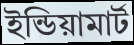
ইন্ডিয়ামার্ট